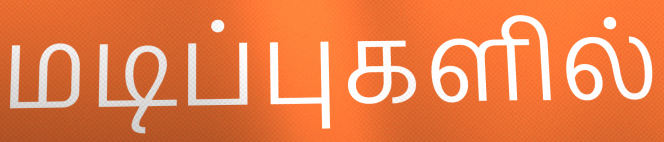
மடிப்புகளில்